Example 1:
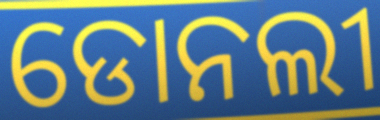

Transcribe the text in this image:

ଡୋନଲୀ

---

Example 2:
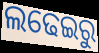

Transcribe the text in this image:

ଲଢେଇରୁ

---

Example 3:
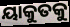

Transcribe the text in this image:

ୟାକୁତକୁ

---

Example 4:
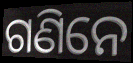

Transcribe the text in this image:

ଗଣିନେ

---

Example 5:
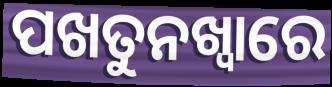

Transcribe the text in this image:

ପଖତୁନଖ୍ୱାରେ